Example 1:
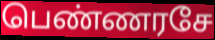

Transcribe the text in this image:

பெண்ணரசே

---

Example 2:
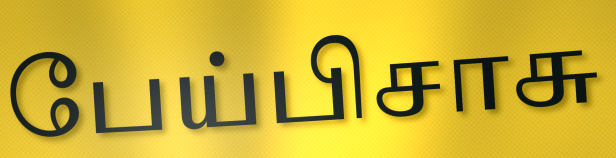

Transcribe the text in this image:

பேய்பிசாசு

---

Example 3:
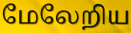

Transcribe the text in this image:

மேலேறிய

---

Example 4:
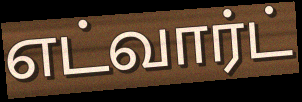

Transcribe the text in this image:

எட்வார்ட்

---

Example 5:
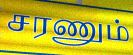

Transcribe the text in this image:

சரணும்